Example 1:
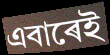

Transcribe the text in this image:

এবাৰেই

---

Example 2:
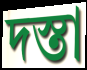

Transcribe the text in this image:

দস্তা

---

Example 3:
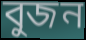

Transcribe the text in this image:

বুজন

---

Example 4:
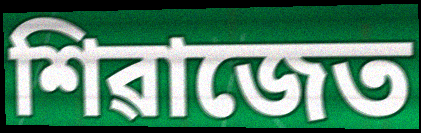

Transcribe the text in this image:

শিৱাজেত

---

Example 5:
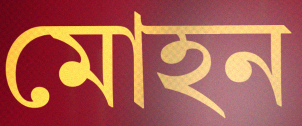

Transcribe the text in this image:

মোহন